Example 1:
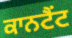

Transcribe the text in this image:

ਕਾਨਟੈਂਟ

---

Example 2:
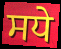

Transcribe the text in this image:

ਸਧੇ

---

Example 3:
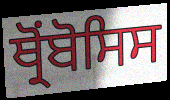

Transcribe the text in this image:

ਥ੍ਰੋਂਬੋਸਿਸ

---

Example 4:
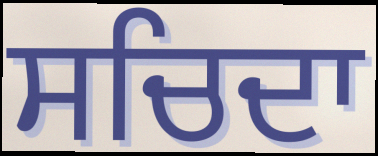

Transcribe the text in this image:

ਸਚਿਦਾ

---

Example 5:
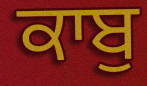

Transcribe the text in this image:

ਕਾਬੁ